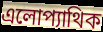
এলোপ্যাথিক